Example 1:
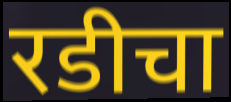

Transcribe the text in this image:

रडीचा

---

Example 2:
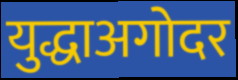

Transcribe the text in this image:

युद्धाअगोदर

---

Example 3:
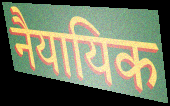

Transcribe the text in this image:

नैयायिक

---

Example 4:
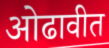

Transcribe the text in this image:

ओढावीत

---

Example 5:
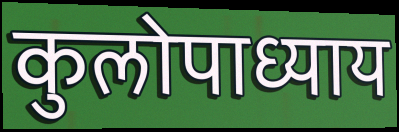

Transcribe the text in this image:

कुलोपाध्याय